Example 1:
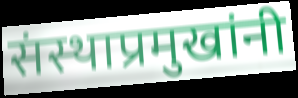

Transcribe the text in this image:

संस्थाप्रमुखांनी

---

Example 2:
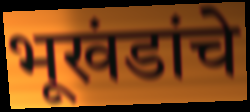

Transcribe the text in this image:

भूखंडांचे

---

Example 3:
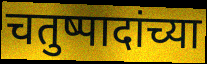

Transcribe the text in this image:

चतुष्पादांच्या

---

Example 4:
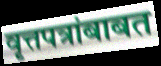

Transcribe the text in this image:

वृत्तपत्रांबाबत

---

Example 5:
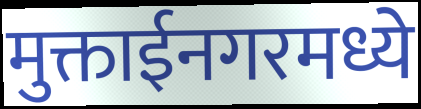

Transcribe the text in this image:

मुक्ताईनगरमध्ये